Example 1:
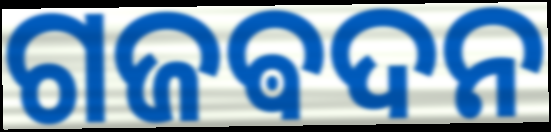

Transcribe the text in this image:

ଗଜଵଦନ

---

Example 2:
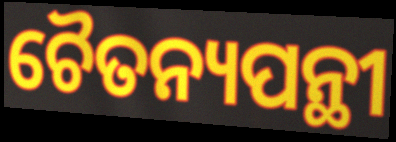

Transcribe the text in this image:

ଚୈତନ୍ୟପନ୍ଥୀ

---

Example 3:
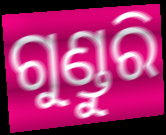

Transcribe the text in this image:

ଗୁଣ୍ଡୁରି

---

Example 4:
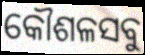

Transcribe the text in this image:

କୌଶଳସବୁ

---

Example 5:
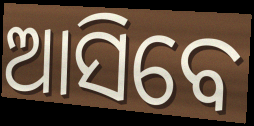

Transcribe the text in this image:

ଆସିବେ